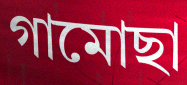
গামোছা